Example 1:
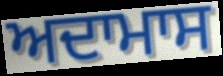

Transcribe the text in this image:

ਅਦਾਮਾਸ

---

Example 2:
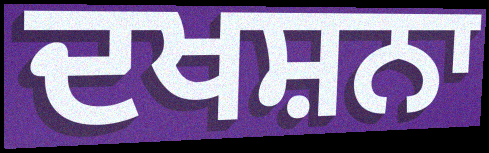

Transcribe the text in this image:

ਦਖਸ਼ਨਾ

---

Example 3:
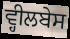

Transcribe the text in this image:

ਵ੍ਹੀਲਬੇਸ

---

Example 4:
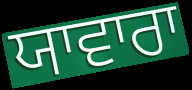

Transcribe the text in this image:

ਯਾਵਾਰਾ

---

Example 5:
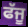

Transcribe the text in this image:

ਫੱਜੂ